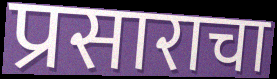
प्रसाराचा